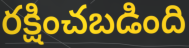
రక్షించబడింది